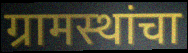
ग्रामस्थांचा